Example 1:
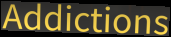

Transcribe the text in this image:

Addictions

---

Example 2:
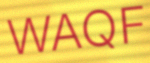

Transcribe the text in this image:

WAQF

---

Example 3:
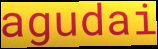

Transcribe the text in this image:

agudai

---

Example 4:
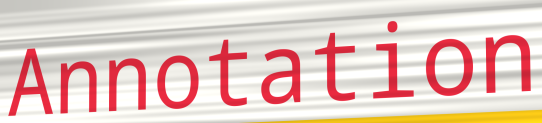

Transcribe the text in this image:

Annotation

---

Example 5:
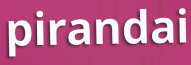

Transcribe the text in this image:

pirandai